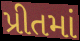
પ્રીતમાં